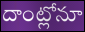
దాంట్లోనూ